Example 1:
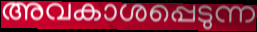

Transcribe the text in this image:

അവകാശപ്പെടുന്ന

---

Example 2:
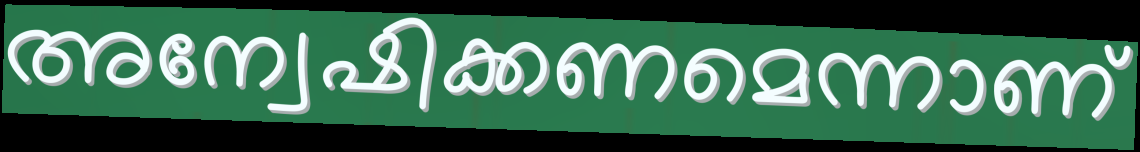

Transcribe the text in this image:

അന്വേഷിക്കണമെന്നാണ്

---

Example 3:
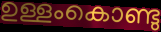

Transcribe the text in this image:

ഉള്ളംകൊണ്ടു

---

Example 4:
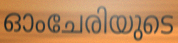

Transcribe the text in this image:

ഓംചേരിയുടെ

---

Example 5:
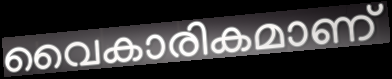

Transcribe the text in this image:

വൈകാരികമാണ്